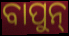
ବାପୁନ୍